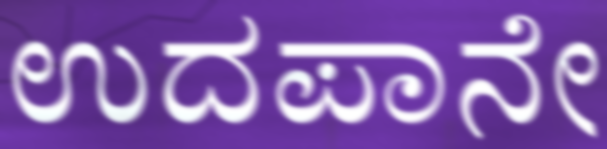
ಉದಪಾನೇ